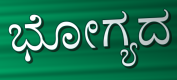
ಭೋಗ್ಯದ